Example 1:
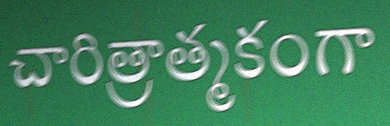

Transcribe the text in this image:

చారిత్రాత్మకంగా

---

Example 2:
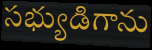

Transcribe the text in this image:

సభ్యుడిగాను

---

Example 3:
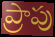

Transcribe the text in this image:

ప్రాపు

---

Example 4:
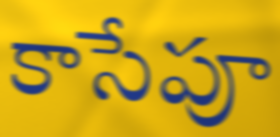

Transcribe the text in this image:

కాసేపూ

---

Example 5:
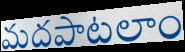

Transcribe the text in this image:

మదపాటలాం